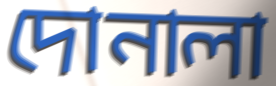
দোনালা